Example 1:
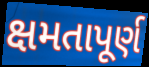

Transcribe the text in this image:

ક્ષમતાપૂર્ણ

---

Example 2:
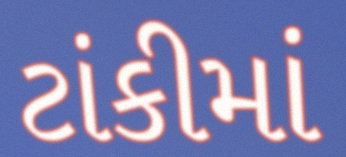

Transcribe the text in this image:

ટાંકીમાં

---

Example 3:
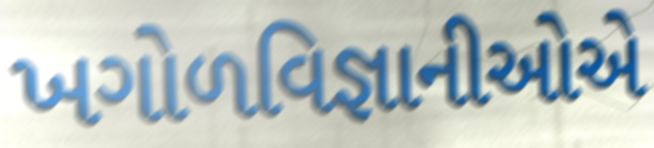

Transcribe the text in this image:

ખગોળવિજ્ઞાનીઓએ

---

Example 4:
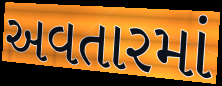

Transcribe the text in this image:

અવતારમાં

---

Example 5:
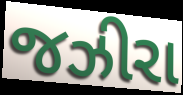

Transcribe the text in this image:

જઝીરા